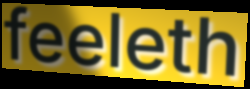
feeleth